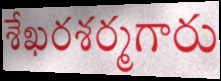
శేఖరశర్మగారు